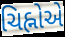
ચિહ્નોએ